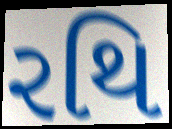
રથિ